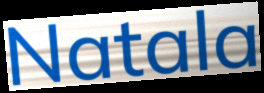
Natala